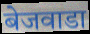
बेजवाडा